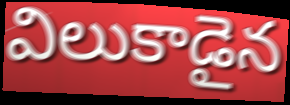
విలుకాడైన